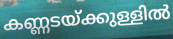
കണ്ണടയ്ക്കുള്ളിൽ